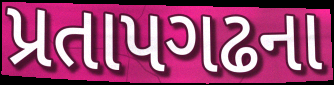
પ્રતાપગઢના